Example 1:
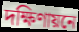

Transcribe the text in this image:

দক্ষিণায়নে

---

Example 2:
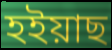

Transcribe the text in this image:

হইয়াছ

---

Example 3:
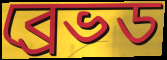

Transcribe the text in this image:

ব্রেভড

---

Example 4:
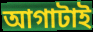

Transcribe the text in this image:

আগাটাই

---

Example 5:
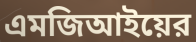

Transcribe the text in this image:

এমজিআইয়ের